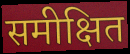
समीक्षित